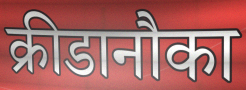
क्रीडानौका